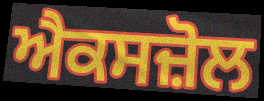
ਐਕਸਜ਼ੋਲ